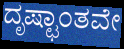
ದೃಷ್ಟಾಂತವೇ